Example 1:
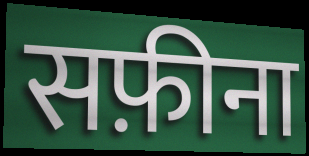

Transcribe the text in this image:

सफ़ीना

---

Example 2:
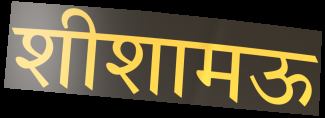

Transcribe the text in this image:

शीशामऊ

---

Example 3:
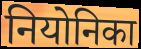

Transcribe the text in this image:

नियोनिका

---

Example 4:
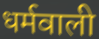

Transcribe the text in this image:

धर्मवाली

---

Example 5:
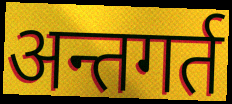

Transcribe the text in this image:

अन्तगर्त